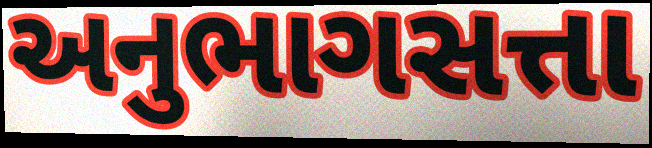
અનુભાગસત્તા